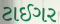
ટાઈગર